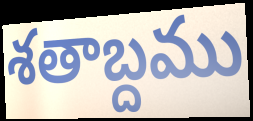
శతాబ్దము